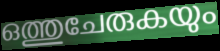
ഒത്തുചേരുകയും